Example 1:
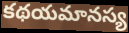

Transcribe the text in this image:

కథయమానస్య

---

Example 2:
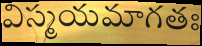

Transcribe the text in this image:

విస్మయమాగతః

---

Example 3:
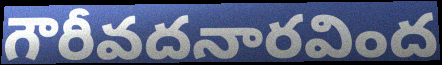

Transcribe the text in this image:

గౌరీవదనారవింద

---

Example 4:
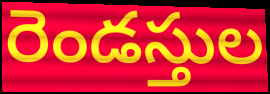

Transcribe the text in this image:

రెండస్తుల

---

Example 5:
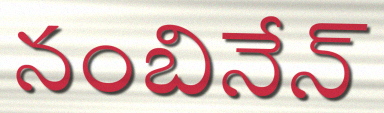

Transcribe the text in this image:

నంబినేన్